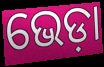
ଭେଡ଼ା